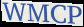
WMCP